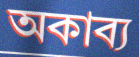
অকাব্য